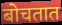
बोचतात